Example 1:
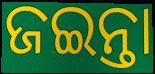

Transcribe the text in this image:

ଜଇନ୍ତା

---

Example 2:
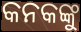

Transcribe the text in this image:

କନକଙ୍କୁ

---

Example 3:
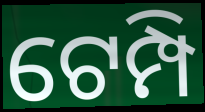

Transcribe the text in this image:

ଟେମ୍ପି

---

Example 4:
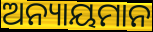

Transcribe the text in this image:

ଅନ୍ୟାୟମାନ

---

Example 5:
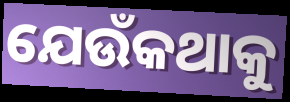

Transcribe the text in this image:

ଯେଉଁକଥାକୁ